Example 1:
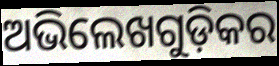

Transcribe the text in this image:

ଅଭିଲେଖଗୁଡ଼ିକର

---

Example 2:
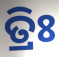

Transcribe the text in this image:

ତ୍ରିଃ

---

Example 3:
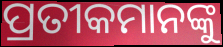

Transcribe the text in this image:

ପ୍ରତୀକମାନଙ୍କୁ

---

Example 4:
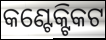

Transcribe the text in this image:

କଣ୍ଟେକ୍ଟିକଟ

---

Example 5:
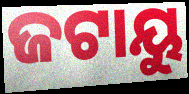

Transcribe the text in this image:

ଜଟାୟୁ